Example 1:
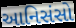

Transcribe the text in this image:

આનિસંસો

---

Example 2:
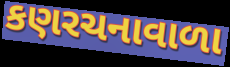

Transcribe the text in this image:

કણરચનાવાળા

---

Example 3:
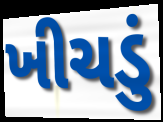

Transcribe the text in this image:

ખીચડું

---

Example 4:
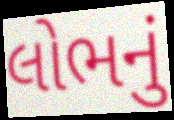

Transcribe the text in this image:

લોભનું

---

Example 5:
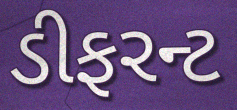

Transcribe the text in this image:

ડીફરન્ટ